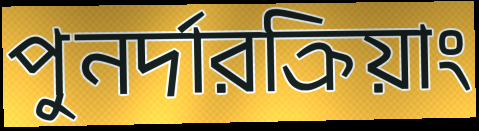
পুনর্দারক্রিয়াং